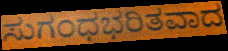
ಸುಗಂಧಭರಿತವಾದ